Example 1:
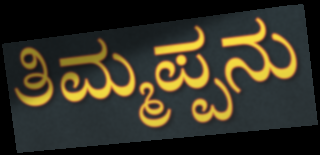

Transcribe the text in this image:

ತಿಮ್ಮಪ್ಪನು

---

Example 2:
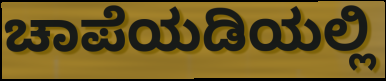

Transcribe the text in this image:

ಚಾಪೆಯಡಿಯಲ್ಲಿ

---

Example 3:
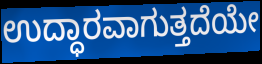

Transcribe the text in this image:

ಉದ್ಧಾರವಾಗುತ್ತದೆಯೇ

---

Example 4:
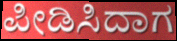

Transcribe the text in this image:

ಪೀಡಿಸಿದಾಗ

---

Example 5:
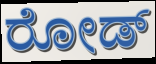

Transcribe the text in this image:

ರೋಡ್